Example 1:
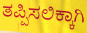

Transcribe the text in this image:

ತಪ್ಪಿಸಲಿಕ್ಕಾಗಿ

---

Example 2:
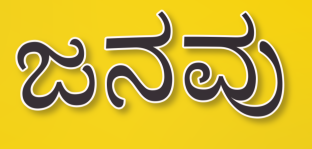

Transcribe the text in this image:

ಜನವು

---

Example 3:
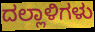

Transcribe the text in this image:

ದಲ್ಲಾಳಿಗಳು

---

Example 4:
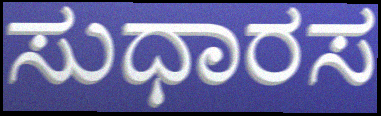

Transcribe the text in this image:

ಸುಧಾರಸ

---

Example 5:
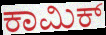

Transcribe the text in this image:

ಕಾಮಿಕ್